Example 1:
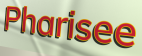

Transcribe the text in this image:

Pharisee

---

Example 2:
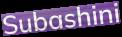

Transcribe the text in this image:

Subashini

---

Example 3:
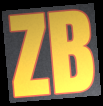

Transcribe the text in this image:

ZB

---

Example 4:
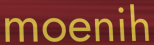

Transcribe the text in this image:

moenih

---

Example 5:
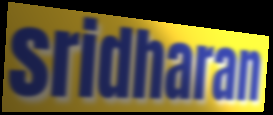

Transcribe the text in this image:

sridharan